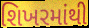
શિખરમાંથી